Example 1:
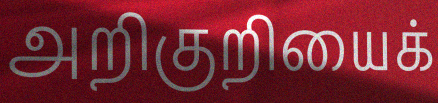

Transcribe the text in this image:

அறிகுறியைக்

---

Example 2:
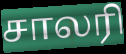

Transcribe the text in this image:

சாலரி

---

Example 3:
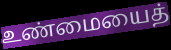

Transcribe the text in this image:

உண்மையைத்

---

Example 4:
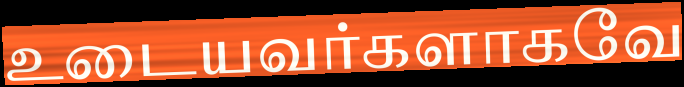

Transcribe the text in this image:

உடையவர்களாகவே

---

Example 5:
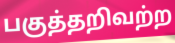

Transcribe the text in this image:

பகுத்தறிவற்ற